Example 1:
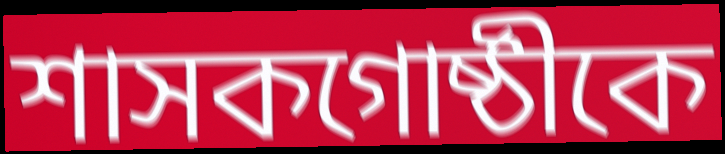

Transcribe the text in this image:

শাসকগোষ্ঠীকে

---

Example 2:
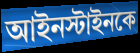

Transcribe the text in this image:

আইনস্টাইনকে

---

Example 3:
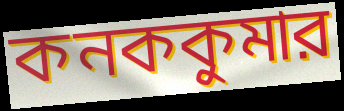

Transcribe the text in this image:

কনককুমার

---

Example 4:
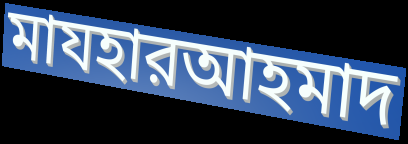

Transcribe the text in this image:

মাযহারআহমাদ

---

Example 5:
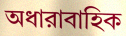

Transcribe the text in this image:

অধারাবাহিক